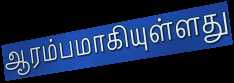
ஆரம்பமாகியுள்ளது